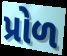
પ્રોળ